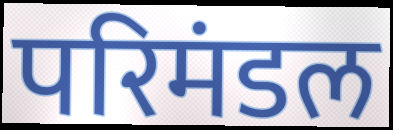
परिमंडल